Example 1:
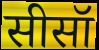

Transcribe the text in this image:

सीसॉ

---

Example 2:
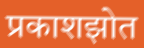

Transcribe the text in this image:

प्रकाशझोत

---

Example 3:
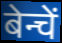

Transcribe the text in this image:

बेन्चें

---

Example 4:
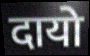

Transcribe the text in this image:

दायो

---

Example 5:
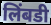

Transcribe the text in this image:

लिंबडी